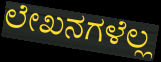
ಲೇಖನಗಳೆಲ್ಲ